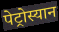
पेट्रोस्यान